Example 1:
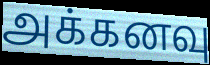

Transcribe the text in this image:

அக்கனவு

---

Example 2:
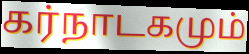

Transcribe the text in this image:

கர்நாடகமும்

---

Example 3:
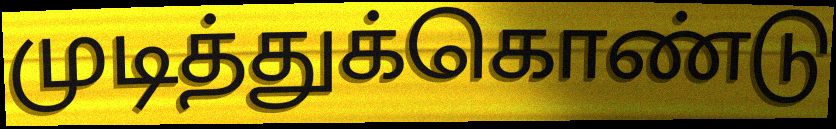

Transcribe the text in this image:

முடித்துக்கொண்டு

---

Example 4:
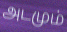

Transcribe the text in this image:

அடமும்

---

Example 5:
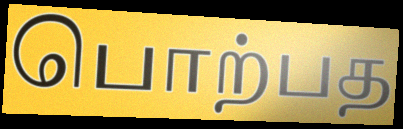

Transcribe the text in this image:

பொற்பத